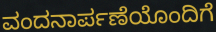
ವಂದನಾರ್ಪಣೆಯೊಂದಿಗೆ